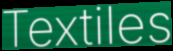
Textiles